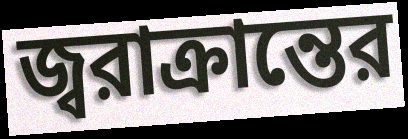
জ্বরাক্রান্তের